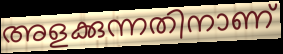
അളക്കുന്നതിനാണ്